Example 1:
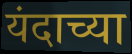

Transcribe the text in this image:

यंदाच्या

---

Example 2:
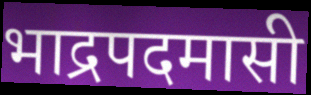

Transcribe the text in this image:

भाद्रपदमासी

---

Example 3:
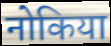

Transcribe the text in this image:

नोकिया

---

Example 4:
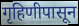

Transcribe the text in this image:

गृहिणीपासून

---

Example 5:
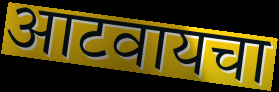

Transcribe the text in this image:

आटवायचा